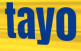
tayo